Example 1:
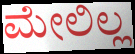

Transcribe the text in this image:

ಮೇಲಿಲ್ಲ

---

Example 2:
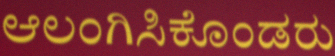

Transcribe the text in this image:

ಆಲಂಗಿಸಿಕೊಂಡರು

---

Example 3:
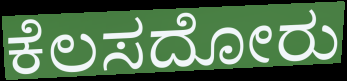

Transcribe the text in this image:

ಕೆಲಸದೋರು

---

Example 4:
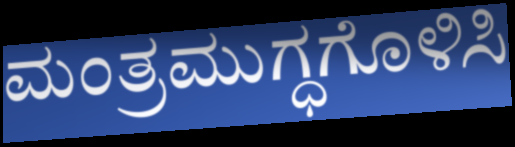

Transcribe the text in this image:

ಮಂತ್ರಮುಗ್ಧಗೊಳಿಸಿ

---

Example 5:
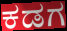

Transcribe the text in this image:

ಕಡಗ